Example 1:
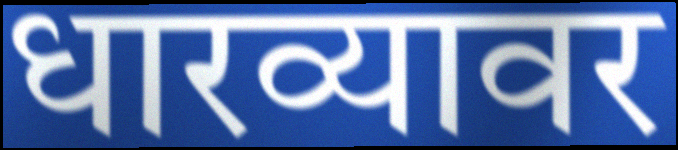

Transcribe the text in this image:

धारव्यावर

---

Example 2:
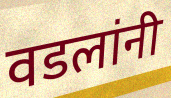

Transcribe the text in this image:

वडलांनी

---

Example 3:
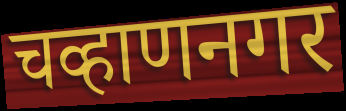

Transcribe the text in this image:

चव्हाणनगर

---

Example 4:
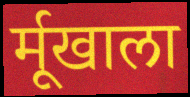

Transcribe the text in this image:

र्मूखाला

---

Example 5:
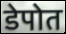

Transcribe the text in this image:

डेपोत